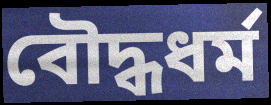
বৌদ্ধধৰ্ম